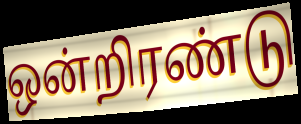
ஒன்றிரண்டு